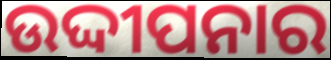
ଉଦ୍ଦୀପନାର